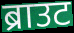
ब्राउट